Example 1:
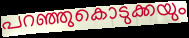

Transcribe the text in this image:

പറഞ്ഞുകൊടുക്കയും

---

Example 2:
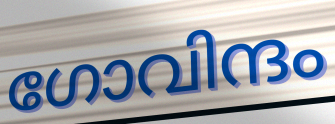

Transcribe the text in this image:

ഗോവിന്ദം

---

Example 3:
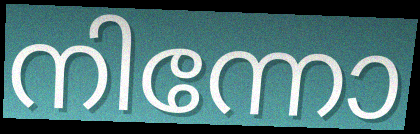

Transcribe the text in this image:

നിന്നോ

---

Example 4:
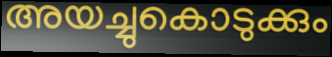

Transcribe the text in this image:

അയച്ചുകൊടുക്കും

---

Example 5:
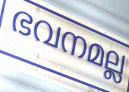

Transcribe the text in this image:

ഭവനമല്ല